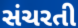
સંચરતી